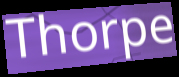
Thorpe